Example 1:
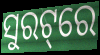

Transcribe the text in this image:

ସୁରଟ୍‌ରେ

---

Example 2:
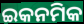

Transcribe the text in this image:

ଇକନମିକ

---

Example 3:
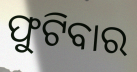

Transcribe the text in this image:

ଫୁଟିବାର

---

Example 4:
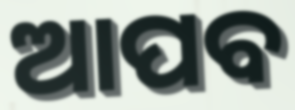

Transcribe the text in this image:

ଆପବ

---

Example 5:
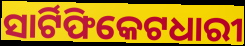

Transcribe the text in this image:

ସାର୍ଟିଫିକେଟଧାରୀ